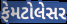
ફેમટોલેસર